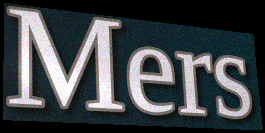
Mers